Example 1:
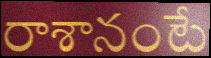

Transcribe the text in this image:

రాశానంటే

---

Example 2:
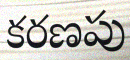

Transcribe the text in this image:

కరణపు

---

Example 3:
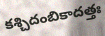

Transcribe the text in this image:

కశ్చిదంబికాదత్తః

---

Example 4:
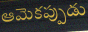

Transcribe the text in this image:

ఆమెకప్పుడు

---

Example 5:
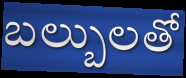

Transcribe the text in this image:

బల్బులతో